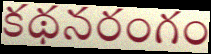
కథనరంగం